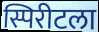
स्पिरीटला